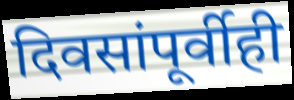
दिवसांपूर्वीही